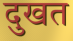
दुखत